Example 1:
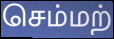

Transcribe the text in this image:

செம்மற்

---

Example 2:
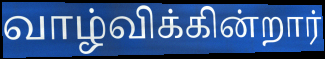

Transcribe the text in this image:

வாழ்விக்கின்றார்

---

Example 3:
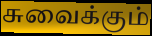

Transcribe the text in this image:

சுவைக்கும்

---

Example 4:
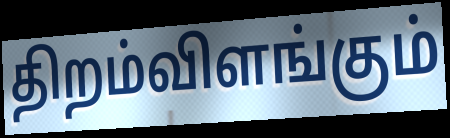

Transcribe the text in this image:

திறம்விளங்கும்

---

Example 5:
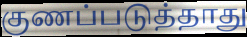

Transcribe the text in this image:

குணப்படுத்தாது